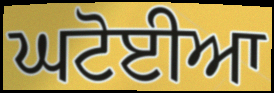
ਘਟੋਈਆ